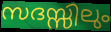
സദസ്സിലും